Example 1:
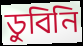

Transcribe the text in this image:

ডুবিনি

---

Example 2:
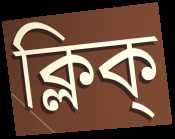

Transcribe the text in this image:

ক্লিক্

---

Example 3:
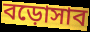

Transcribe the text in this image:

বড়োসাব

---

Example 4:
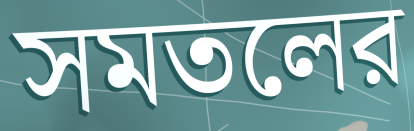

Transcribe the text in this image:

সমতলের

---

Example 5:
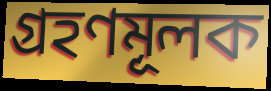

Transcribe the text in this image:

গ্রহণমূলক